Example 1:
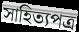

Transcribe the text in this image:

সাহিত্যপত্র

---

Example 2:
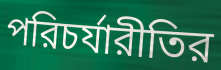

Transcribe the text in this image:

পরিচর্যারীতির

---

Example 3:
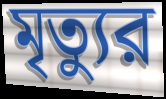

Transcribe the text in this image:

মৃত্যুর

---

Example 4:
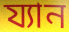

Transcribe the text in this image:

য্যান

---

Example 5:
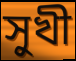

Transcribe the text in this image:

সুখী